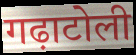
गढ़ाटोली